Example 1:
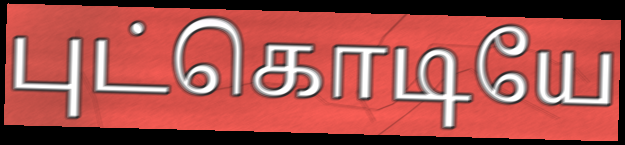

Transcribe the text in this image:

புட்கொடியே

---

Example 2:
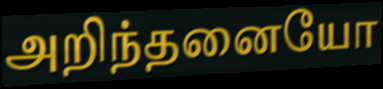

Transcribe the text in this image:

அறிந்தனையோ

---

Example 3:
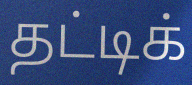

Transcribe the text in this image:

தட்டிக்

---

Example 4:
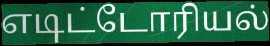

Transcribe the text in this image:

எடிட்டோரியல்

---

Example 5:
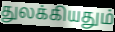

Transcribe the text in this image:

துலக்கியதும்